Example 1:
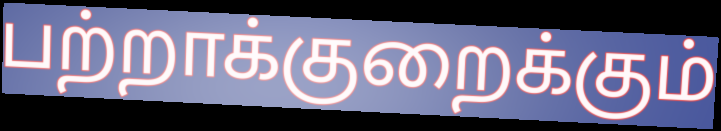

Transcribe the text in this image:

பற்றாக்குறைக்கும்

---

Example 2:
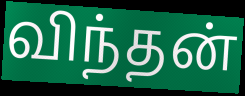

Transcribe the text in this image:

விந்தன்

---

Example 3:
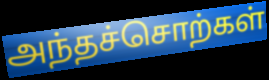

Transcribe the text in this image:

அந்தச்சொற்கள்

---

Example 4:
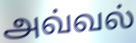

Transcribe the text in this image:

அவ்வல்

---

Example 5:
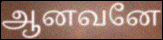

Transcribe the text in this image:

ஆனவனே